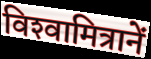
विश्वामित्रानें